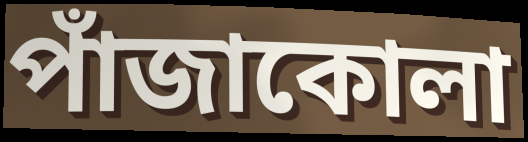
পাঁজাকোলা